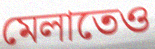
মেলাতেও